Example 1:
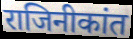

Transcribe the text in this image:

राजिनीकांत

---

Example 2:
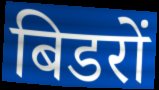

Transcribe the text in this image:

बिडरों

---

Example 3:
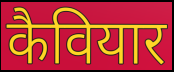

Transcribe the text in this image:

कैवियार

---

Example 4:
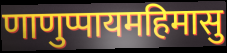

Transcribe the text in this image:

णाणुप्पायमहिमासु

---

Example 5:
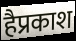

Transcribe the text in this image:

हैप्रकाश